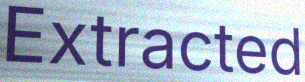
Extracted